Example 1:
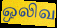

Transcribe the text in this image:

ஒலிவ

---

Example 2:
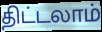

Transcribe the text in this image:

திட்டலாம்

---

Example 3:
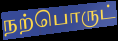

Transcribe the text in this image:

நற்பொருட்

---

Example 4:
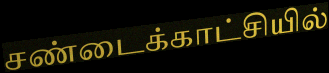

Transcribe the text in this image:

சண்டைக்காட்சியில்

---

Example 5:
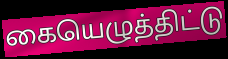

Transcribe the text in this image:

கையெழுத்திட்டு